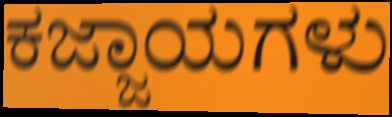
ಕಜ್ಜಾಯಗಳು